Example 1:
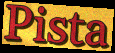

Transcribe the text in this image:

Pista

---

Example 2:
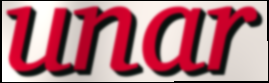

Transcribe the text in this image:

unar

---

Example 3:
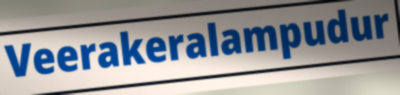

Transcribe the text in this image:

Veerakeralampudur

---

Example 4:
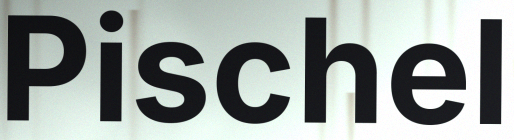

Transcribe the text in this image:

Pischel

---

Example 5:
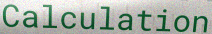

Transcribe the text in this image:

Calculation